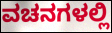
ವಚನಗಳಲ್ಲಿ